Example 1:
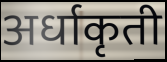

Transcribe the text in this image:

अर्धाकृती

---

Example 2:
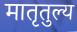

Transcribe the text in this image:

मातृतुल्य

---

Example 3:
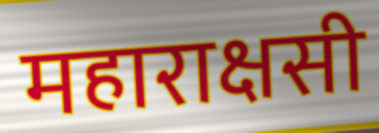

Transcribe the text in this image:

महाराक्षसी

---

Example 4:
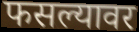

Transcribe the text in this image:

फसल्यावर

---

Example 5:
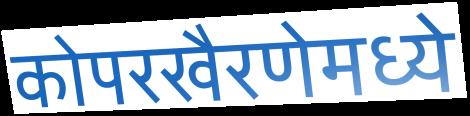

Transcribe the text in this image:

कोपरखैरणेमध्ये